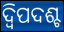
ଦ୍ବିପଦଶ୍ଚ